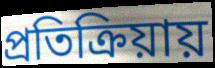
প্রতিক্রিয়ায়